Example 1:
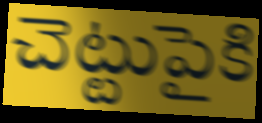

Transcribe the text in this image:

చెట్టుపైకి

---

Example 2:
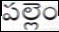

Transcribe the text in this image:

పల్లెం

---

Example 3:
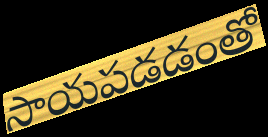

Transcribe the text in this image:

సాయపడడంతో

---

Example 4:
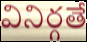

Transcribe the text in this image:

వినిర్గతే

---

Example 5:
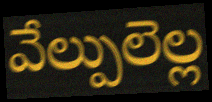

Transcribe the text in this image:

వేల్పులెల్ల